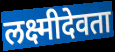
लक्ष्मीदेवता